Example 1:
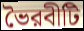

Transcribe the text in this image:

ভৈরবীটি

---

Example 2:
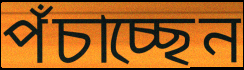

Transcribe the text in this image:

পঁচাচ্ছেন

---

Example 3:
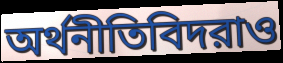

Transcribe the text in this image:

অর্থনীতিবিদরাও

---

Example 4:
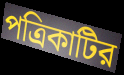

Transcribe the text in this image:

পত্রিকাটির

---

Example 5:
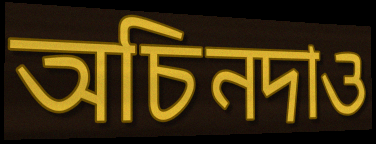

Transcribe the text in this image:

অচিনদাও